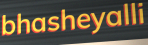
bhasheyalli